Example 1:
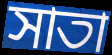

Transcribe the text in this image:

সাতা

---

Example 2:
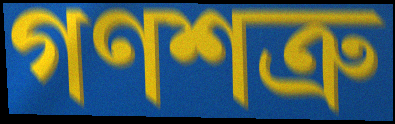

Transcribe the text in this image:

গণশত্রু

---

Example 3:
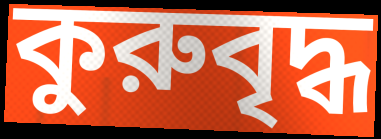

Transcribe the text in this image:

কুরুবৃদ্ধ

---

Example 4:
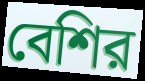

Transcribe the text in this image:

বেশির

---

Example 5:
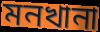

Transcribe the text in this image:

মনখানা